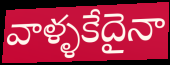
వాళ్ళకేదైనా